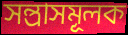
সন্ত্রাসমূলক